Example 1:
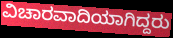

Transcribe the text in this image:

ವಿಚಾರವಾದಿಯಾಗಿದ್ದರು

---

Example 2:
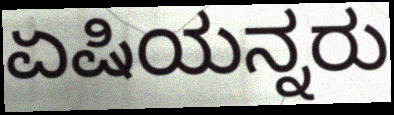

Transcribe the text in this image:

ಏಷಿಯನ್ನರು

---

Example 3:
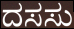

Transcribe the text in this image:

ದಸಸು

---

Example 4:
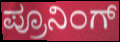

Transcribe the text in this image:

ಪ್ರೂನಿಂಗ್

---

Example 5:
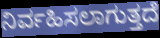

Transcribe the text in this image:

ನಿರ್ವಹಿಸಲಾಗುತ್ತದೆ